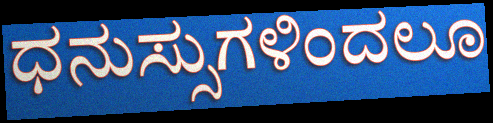
ಧನುಸ್ಸುಗಳಿಂದಲೂ